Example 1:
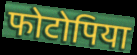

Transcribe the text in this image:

फोटोपिया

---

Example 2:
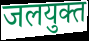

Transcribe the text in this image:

जलयुक्त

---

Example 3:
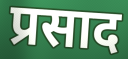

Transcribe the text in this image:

प्रसाद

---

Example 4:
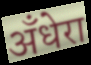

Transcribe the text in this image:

अँधेरा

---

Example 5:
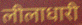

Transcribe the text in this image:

लीलाधारी